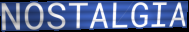
NOSTALGIA